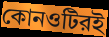
কোনওটিরই